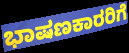
ಭಾಷಣಕಾರರಿಗೆ